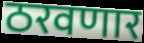
ठरवणार